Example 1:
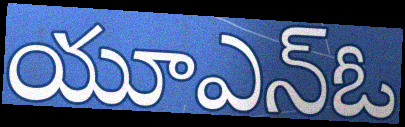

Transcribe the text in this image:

యూఎన్ఓ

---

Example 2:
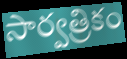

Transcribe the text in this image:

సార్వత్రికం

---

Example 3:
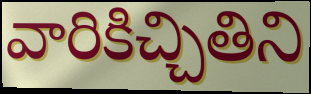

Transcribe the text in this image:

వారికిచ్చితిని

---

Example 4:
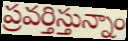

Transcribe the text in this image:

ప్రవర్తిస్తున్నాం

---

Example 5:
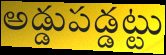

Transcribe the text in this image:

అడ్డుపడ్డట్టు